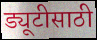
ड्यूटीसाठी